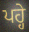
ਪਹ੍ਹੇ